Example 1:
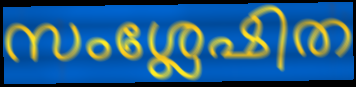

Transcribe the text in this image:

സംശ്ലേഷിത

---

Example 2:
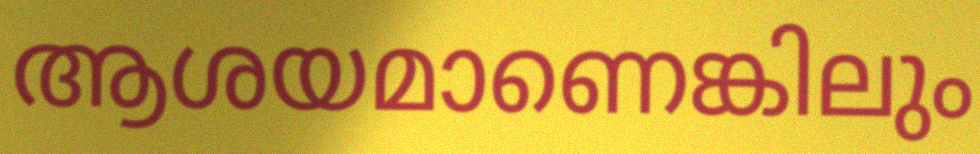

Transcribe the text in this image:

ആശയമാണെങ്കിലും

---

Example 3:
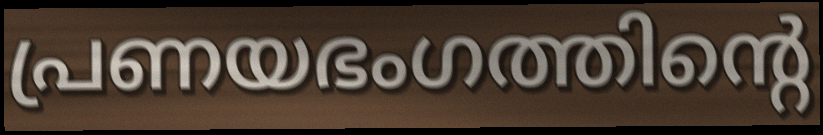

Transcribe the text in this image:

പ്രണയഭംഗത്തിന്റെ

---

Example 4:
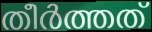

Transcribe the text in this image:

തീർത്തത്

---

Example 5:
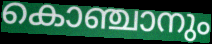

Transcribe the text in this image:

കൊഞ്ചാനും